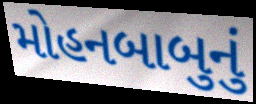
મોહનબાબુનું